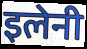
इलेनी